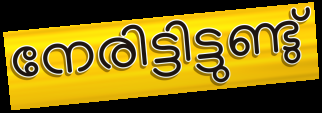
നേരിട്ടിട്ടുണ്ടു്